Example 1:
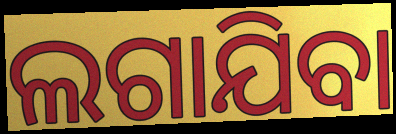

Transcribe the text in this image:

ଲଗାଯିବା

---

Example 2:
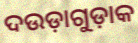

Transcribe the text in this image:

ଦଉଡ଼ାଗୁଡ଼ାକ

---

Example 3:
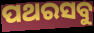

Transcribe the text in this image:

ପଥରସବୁ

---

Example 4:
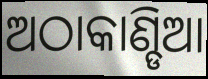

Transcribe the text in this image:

ଅଠାକାଣ୍ଡିଆ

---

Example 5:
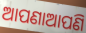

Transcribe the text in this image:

ଆପଣାଆପଣି